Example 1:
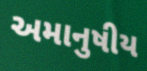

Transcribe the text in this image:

અમાનુષીય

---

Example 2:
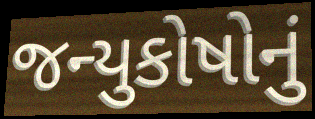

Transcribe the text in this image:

જન્યુકોષોનું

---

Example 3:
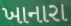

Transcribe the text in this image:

ખાનારા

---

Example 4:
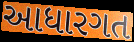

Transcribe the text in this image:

આધારગત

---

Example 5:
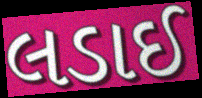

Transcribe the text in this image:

લડાઈ